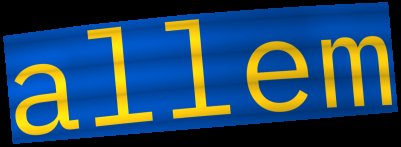
allem